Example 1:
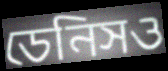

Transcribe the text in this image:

ডেনিসও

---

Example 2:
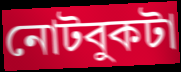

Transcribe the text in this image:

নোটবুকটা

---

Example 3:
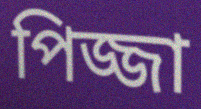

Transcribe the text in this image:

পিজ্জা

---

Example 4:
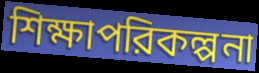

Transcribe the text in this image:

শিক্ষাপরিকল্পনা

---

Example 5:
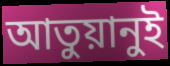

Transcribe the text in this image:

আতুয়ানুই